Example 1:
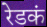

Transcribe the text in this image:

रेडकं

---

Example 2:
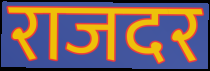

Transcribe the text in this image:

राजदर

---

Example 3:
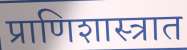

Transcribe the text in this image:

प्राणिशास्त्रात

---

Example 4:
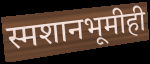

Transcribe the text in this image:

स्मशानभूमीही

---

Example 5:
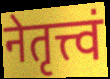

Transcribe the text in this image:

नेतृत्त्वं